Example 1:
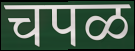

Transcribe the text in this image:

चपळ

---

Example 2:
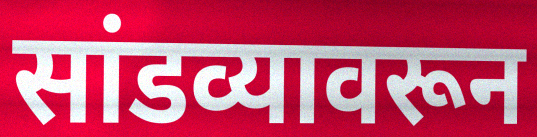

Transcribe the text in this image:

सांडव्यावरून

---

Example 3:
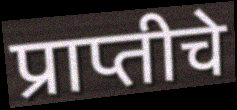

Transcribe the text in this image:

प्राप्तीचे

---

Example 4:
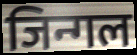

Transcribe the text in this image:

जिन्गल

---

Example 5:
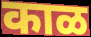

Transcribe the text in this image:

काळ